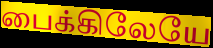
பைக்கிலேயே